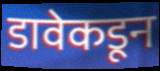
डावेकडून